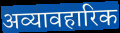
अव्यावहारिक